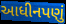
આધીનપણું